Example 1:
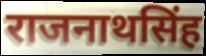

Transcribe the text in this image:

राजनाथसिंह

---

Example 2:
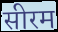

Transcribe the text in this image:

सीरम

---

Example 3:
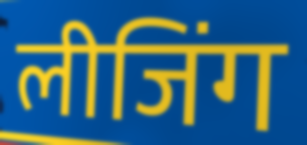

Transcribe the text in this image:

लीजिंग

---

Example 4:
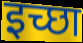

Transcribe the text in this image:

इच्छा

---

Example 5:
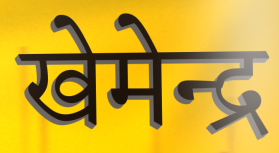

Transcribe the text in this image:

खेमेन्द्र